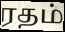
ரதம்